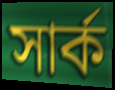
সার্ক